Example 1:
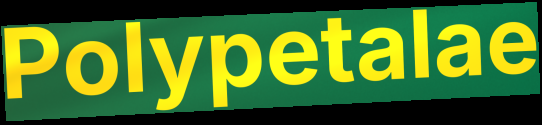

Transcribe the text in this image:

Polypetalae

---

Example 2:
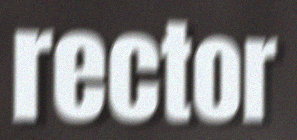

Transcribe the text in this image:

rector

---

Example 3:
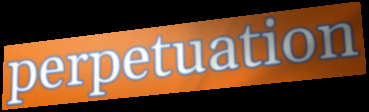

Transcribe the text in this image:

perpetuation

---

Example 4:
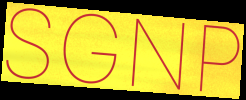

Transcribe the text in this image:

SGNP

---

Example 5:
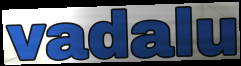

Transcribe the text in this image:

vadalu